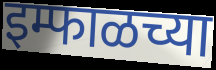
इम्फाळच्या